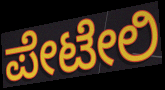
ಪೇಟೇಲಿ